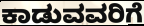
ಕಾಡುವವರಿಗೆ